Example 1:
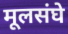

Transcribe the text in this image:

मूलसंघे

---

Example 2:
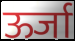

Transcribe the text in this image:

ऊर्जा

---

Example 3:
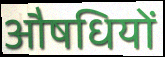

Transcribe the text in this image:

औषधियों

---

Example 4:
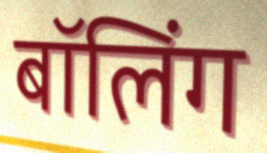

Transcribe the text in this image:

बॉलिंग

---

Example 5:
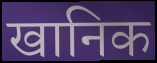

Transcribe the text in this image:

खानिक